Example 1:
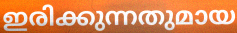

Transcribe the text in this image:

ഇരിക്കുന്നതുമായ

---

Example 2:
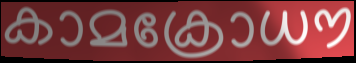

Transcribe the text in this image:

കാമക്രോധൗ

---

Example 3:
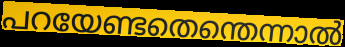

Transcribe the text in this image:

പറയേണ്ടതെന്തെന്നാൽ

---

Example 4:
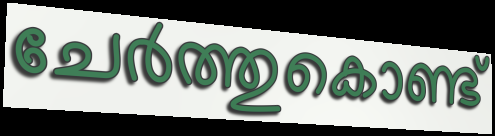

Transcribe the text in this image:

ചേർത്തുകൊണ്ട്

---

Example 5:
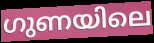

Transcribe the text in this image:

ഗുണയിലെ